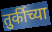
तुर्कीच्या